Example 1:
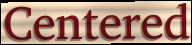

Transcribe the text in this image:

Centered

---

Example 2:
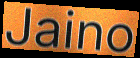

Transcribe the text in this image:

Jaino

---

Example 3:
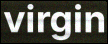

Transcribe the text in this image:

virgin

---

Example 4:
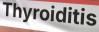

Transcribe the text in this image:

Thyroiditis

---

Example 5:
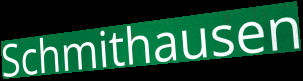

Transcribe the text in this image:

Schmithausen